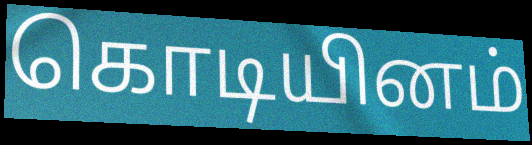
கொடியினம்